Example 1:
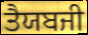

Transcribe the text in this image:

ਤੈਯਬਜੀ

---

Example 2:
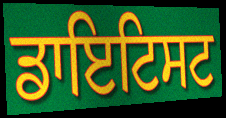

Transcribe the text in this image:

ਡਾਇਟਿਸਟ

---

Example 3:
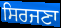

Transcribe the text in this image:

ਸਿਰਜਣਾ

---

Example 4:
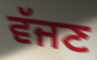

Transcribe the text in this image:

ਵੱਜਣ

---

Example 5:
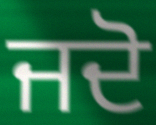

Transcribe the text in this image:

ਜਦੋ